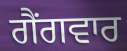
ਗੈਂਗਵਾਰ